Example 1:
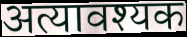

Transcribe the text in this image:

अत्यावश्यक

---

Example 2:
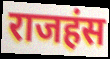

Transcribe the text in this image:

राजहंस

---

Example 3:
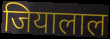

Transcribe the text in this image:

जियालाल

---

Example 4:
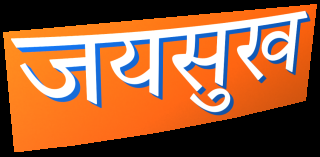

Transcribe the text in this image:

जयसुख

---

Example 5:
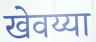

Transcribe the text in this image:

खेवय्या